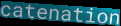
catenation